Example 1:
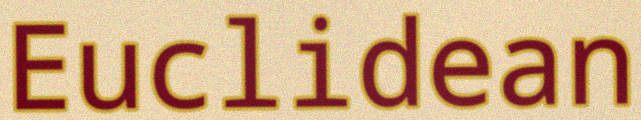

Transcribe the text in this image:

Euclidean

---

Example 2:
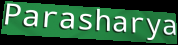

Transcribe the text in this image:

Parasharya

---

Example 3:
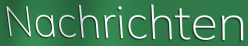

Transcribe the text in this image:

Nachrichten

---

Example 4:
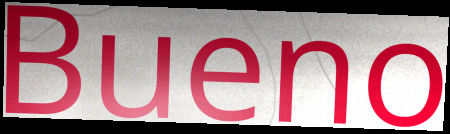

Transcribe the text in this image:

Bueno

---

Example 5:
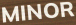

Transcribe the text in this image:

MINOR